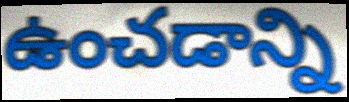
ఉంచడాన్ని